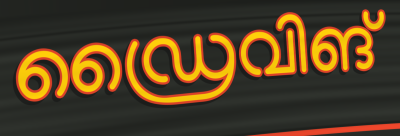
ഡ്രൈവിങ്